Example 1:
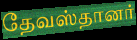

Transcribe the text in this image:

தேவஸ்தானர்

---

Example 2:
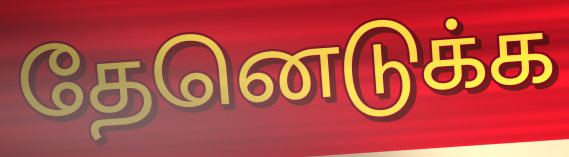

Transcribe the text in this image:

தேனெடுக்க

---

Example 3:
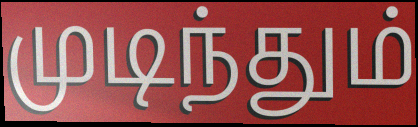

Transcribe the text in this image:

முடிந்தும்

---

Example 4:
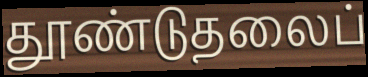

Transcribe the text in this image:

தூண்டுதலைப்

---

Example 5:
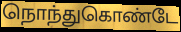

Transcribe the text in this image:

நொந்துகொண்டே